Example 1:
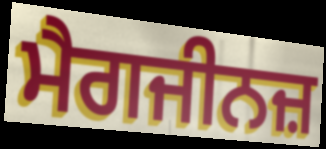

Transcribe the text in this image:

ਮੈਗਜੀਨਜ਼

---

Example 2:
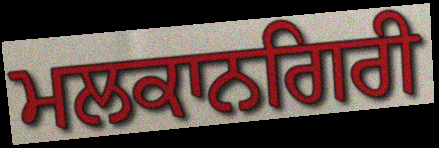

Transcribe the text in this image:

ਮਲਕਾਨਗਿਰੀ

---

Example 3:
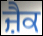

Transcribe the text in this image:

ਜ਼ੈਕ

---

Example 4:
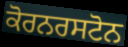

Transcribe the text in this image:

ਕੋਰਨਰਸਟੋਨ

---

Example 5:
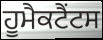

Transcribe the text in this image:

ਹੂਮੈਕਟੈਂਟਸ